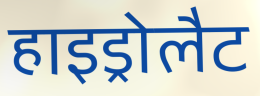
हाइड्रोलैट